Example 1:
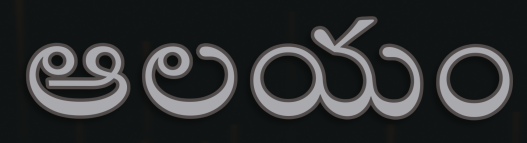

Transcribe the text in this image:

ఆలయం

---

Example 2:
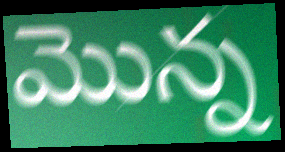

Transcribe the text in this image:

మొన్న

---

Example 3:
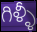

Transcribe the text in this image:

గిళ్ళీ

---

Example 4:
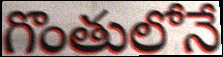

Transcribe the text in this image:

గొంతులోనే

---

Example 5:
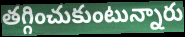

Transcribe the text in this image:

తగ్గించుకుంటున్నారు